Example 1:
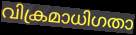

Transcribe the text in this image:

വിക്രമാധിഗതാ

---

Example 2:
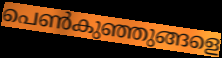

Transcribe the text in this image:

പെൺകുഞ്ഞുങ്ങളെ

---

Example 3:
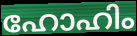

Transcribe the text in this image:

ഹോഹിം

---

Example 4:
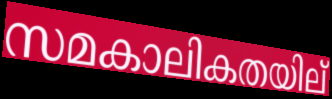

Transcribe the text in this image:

സമകാലികതയില്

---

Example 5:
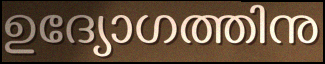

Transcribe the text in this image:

ഉദ്യോഗത്തിനു